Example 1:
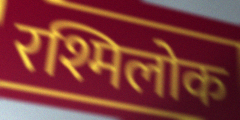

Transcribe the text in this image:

रश्मिलोक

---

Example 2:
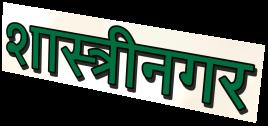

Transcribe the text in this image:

शास्त्रीनगर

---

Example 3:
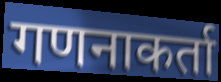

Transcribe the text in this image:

गणनाकर्ता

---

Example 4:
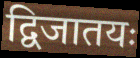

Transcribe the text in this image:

द्विजातयः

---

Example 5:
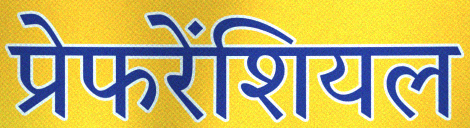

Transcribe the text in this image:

प्रेफरेंशियल